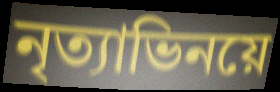
নৃত্যাভিনয়ে